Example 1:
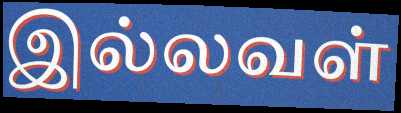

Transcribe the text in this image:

இல்லவள்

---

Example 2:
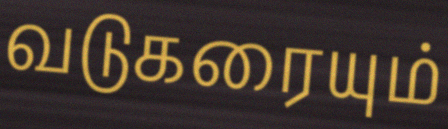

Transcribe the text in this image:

வடுகரையும்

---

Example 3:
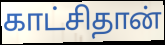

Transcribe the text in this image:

காட்சிதான்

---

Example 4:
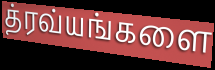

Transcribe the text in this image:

த்ரவ்யங்களை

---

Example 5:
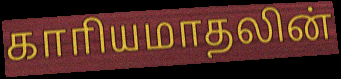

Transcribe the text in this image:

காரியமாதலின்